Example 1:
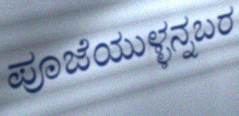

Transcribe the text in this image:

ಪೂಜೆಯುಳ್ಳನ್ನಬರ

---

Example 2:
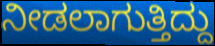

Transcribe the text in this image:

ನೀಡಲಾಗುತ್ತಿದ್ದು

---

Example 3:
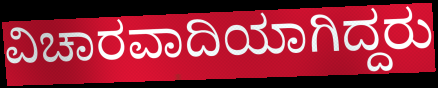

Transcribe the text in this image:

ವಿಚಾರವಾದಿಯಾಗಿದ್ದರು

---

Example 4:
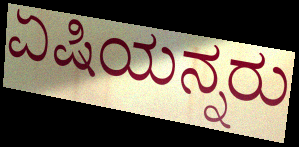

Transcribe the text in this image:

ಏಷಿಯನ್ನರು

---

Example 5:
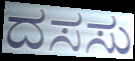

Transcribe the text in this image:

ದಸಸು